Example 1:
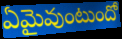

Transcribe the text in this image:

ఏమైవుంటుందో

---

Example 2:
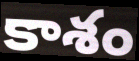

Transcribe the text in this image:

కాశం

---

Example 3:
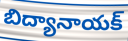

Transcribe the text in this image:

బిద్యానాయక్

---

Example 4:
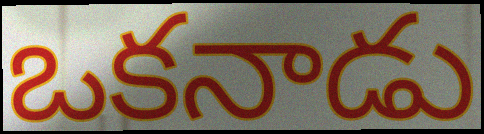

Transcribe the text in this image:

ఒకనాడు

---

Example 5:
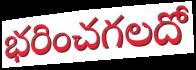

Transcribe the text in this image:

భరించగలదో